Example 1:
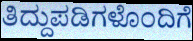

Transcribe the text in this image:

ತಿದ್ದುಪಡಿಗಳೊಂದಿಗೆ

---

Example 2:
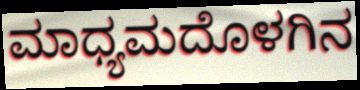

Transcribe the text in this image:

ಮಾಧ್ಯಮದೊಳಗಿನ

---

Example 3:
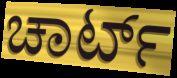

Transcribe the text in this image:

ಚಾರ್ಟ್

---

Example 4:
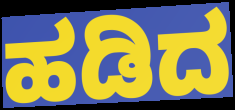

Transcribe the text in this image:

ಹಡಿದ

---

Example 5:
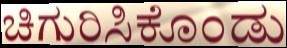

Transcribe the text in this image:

ಚಿಗುರಿಸಿಕೊಂಡು